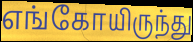
எங்கோயிருந்து